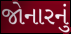
જોનારનું